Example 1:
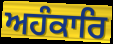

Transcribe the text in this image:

ਅਹੰਕਾਰਿ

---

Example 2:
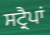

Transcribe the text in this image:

ਸਟ੍ਰੈਪਾਂ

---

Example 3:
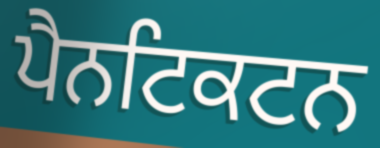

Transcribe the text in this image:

ਪੈਨਟਿਕਟਨ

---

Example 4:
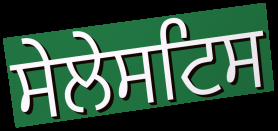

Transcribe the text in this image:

ਸੇਲੇਸਟਿਸ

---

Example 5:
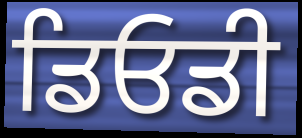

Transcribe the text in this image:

ਡਿਓਡੀ